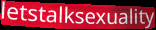
letstalksexuality